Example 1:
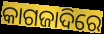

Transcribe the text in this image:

କାଗଜାଦିରେ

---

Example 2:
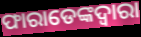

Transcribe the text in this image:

ଫାରାଡେଙ୍କଦ୍ୱାରା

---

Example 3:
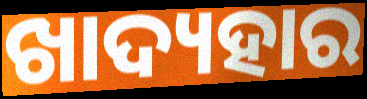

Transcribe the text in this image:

ଖାଦ୍ୟହାର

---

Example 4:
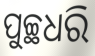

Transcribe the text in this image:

ପୁଚ୍ଛଧରି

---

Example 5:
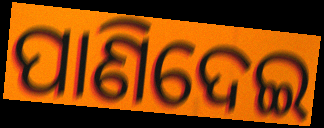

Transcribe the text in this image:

ପାଣିଦେଇ